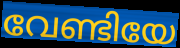
വേണ്ടിയേ